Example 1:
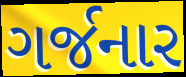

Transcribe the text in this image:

ગર્જનાર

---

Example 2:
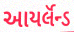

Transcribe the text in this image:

આયર્લૅન્ડ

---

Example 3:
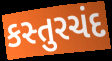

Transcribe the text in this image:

કસ્તુરચંદ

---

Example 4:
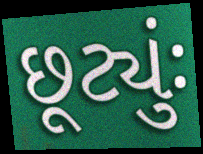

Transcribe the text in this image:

છૂટ્યુંઃ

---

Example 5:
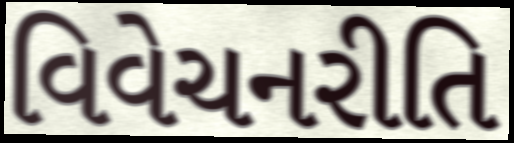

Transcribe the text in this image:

વિવેચનરીતિ